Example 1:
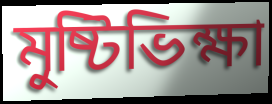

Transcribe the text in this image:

মুষ্টিভিক্ষা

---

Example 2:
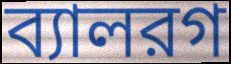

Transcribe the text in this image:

ব্যালরগ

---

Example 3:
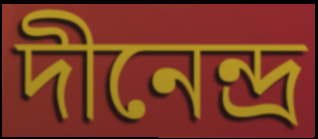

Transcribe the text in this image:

দীনেন্দ্র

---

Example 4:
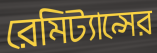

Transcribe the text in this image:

রেমিট্যান্সের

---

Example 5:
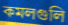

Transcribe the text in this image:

কমলগুলি